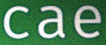
cae